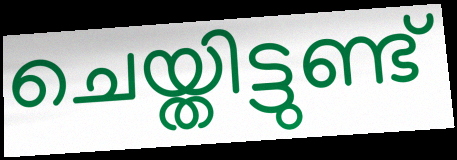
ചെയ്തിട്ടുണ്ട്